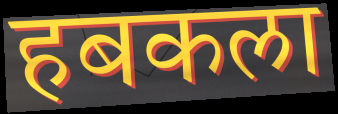
हबकला